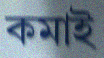
কমাই